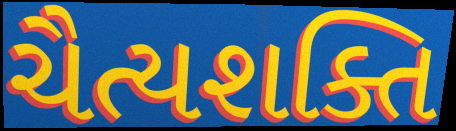
ચૈત્યશક્તિ